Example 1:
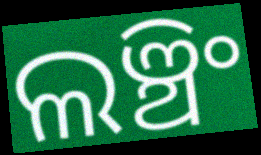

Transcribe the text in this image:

ଲଞ୍ଚିଂ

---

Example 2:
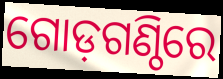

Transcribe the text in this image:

ଗୋଡ଼ଗଣ୍ଠିରେ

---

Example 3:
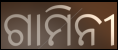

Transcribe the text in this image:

ଗାମିନୀ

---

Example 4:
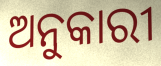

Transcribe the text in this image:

ଅନୁକାରୀ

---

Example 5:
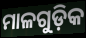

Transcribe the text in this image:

ମାଳଗୁଡ଼ିକ